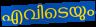
എവിടെയും